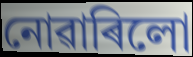
নোৱাৰিলো